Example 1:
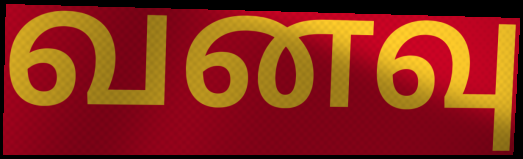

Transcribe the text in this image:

வனவு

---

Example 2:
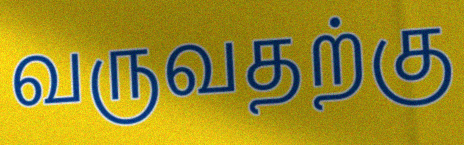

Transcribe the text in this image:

வருவதற்கு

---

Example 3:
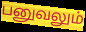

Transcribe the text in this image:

பனுவலும்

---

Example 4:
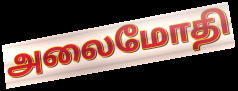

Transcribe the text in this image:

அலைமோதி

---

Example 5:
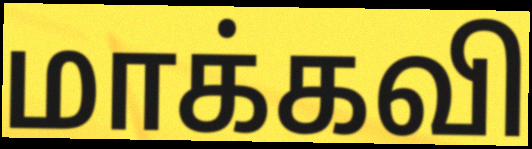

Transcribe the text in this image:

மாக்கவி